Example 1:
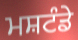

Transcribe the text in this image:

ਮਸ਼ਟੰਡੇ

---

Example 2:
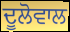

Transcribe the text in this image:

ਦੂਲੋਵਾਲ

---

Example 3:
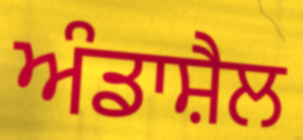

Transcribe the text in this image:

ਅੰਡਾਸ਼ੈਲ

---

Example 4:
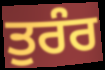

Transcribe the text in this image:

ਤੁਰੰਰ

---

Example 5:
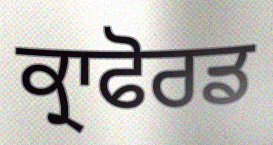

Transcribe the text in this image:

ਕ੍ਰਾਫੋਰਡ